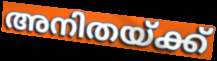
അനിതയ്ക്ക്